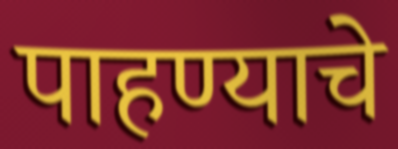
पाहण्याचे